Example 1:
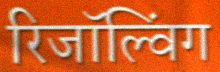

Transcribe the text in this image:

रिजॉल्विंग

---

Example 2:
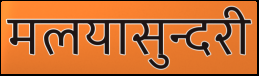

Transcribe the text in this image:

मलयासुन्दरी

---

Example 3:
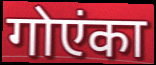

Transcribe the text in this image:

गोएंका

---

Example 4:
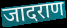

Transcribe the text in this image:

जादराण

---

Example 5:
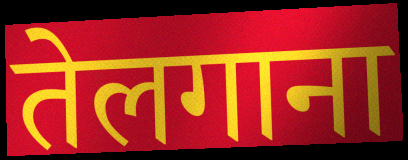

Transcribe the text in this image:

तेलगाना